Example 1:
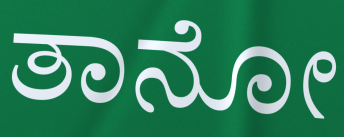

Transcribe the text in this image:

ತಾನೋ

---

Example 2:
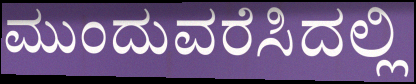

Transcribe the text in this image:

ಮುಂದುವರೆಸಿದಲ್ಲಿ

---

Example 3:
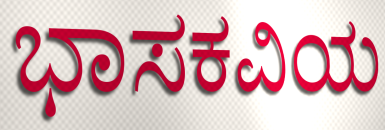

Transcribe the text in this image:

ಭಾಸಕವಿಯ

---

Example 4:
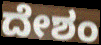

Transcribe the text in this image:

ದೇಶಂ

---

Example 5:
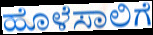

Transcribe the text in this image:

ಹೊಳೆಸಾಲಿಗೆ